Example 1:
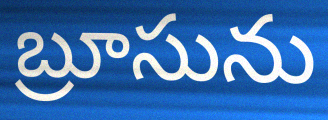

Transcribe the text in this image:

బ్రూసును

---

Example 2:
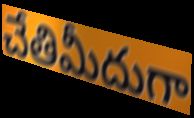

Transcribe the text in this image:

చేతిమీదుగా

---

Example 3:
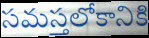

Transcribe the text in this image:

సమస్తలోకానికి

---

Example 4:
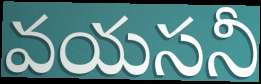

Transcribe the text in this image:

వయసనీ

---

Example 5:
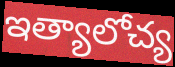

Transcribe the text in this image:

ఇత్యాలోచ్య